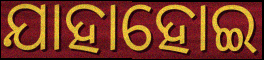
ଯାହାହୋଇ